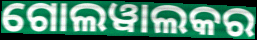
ଗୋଲୱାଲକର